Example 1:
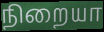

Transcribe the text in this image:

நிறையா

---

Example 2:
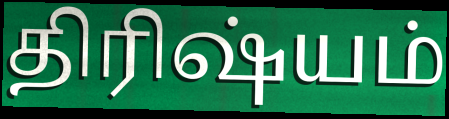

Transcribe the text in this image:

திரிஷ்யம்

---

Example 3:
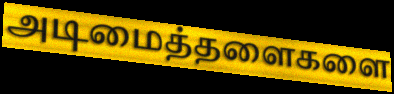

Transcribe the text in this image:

அடிமைத்தளைகளை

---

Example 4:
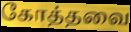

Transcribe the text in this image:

கோத்தவை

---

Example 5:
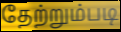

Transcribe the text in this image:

தேற்றும்படி